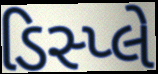
ડિસ્પ્લે